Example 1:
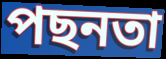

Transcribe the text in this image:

পছনতা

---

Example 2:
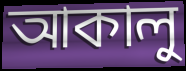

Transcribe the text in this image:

আকালু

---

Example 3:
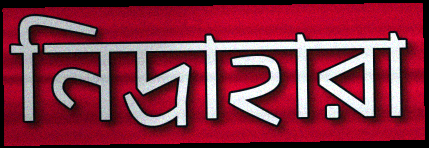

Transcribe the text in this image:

নিদ্রাহারা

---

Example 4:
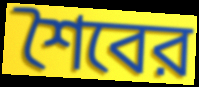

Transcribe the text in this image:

শৈবের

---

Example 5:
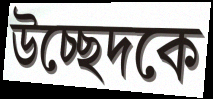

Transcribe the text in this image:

উচ্ছেদকে